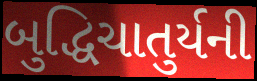
બુદ્ધિચાતુર્યની